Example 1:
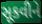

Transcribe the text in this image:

સૂકવીને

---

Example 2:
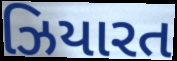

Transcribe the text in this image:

ઝિયારત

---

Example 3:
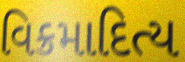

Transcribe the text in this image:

વિક્રમાદિત્‍ય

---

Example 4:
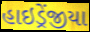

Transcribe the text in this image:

હાઇડ્રેંજીયા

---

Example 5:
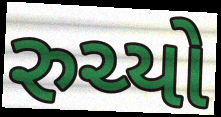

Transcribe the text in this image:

રુચ્યો